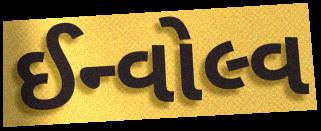
ઈન્વોલ્વ